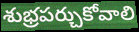
శుభ్రపర్చుకోవాలి